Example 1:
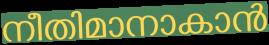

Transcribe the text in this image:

നീതിമാനാകാൻ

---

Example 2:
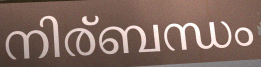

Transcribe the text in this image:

നിര്ബന്ധം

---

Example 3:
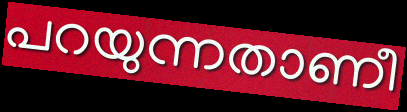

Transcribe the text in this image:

പറയുന്നതാണീ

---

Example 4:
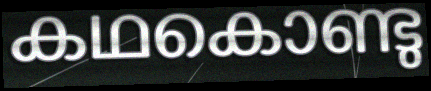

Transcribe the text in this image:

കഥകൊണ്ടു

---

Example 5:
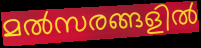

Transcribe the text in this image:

മൽസരങ്ങളിൽ